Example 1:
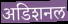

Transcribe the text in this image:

अडिशनल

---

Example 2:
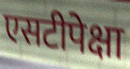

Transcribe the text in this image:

एसटीपेक्षा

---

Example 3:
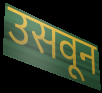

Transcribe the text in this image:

उसवून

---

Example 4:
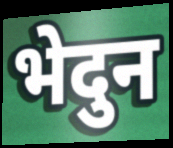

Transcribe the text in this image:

भेदुन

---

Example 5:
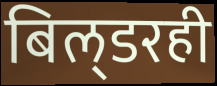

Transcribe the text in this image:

बिल्डरही